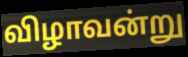
விழாவன்று